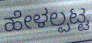
ಹೇಳಲ್ಪಟ್ಟ